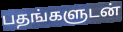
பதங்களுடன்